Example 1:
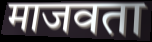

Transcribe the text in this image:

माजवता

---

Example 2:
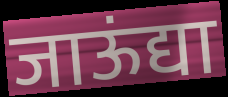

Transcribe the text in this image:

जाऊंद्या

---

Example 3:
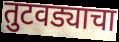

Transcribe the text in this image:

तुटवड्याचा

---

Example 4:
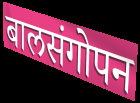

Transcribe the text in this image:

बालसंगोपन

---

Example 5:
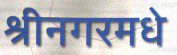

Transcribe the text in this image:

श्रीनगरमधे